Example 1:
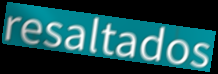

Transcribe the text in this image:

resaltados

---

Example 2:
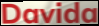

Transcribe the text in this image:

Davida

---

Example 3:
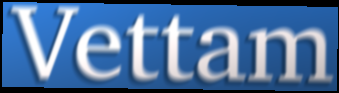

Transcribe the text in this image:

Vettam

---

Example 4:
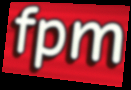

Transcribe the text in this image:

fpm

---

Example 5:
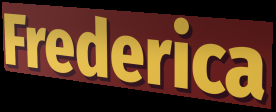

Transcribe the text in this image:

Frederica